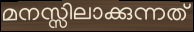
മനസ്സിലാക്കുന്നത്